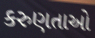
કરુણતાઓ